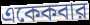
একেকবার